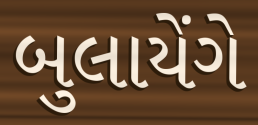
બુલાયેંગે